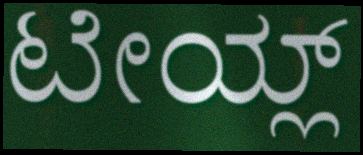
ಟೇಯ್ಲ್